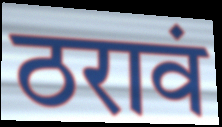
ठरावं